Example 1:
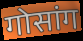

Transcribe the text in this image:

गोसांग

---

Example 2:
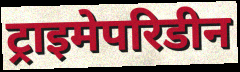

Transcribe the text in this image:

ट्राइमेपरिडीन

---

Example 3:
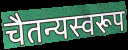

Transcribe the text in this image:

चैतन्यस्वरूप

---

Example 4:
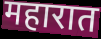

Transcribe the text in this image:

महारात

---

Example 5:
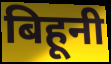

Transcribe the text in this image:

बिहूनी